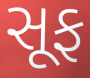
સૂફ